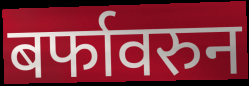
बर्फावरुन